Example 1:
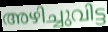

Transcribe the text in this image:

അഴിച്ചുവിട്ട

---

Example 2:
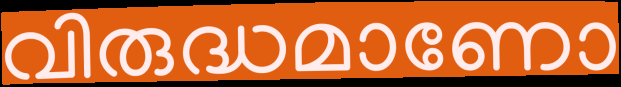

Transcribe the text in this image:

വിരുദ്ധമാണോ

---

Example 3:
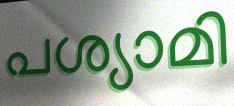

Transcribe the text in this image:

പശ്യാമി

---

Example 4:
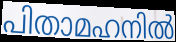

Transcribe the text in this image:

പിതാമഹനിൽ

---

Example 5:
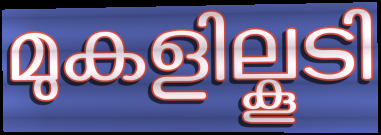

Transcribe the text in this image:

മുകളില്കൂടി